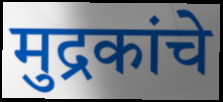
मुद्रकांचे